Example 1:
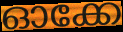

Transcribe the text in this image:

ഓക്കേ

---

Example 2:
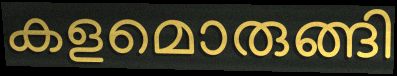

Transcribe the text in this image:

കളമൊരുങ്ങി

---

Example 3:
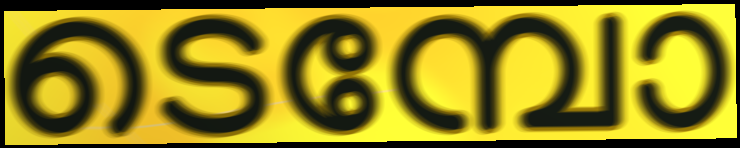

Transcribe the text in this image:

ടെമ്പോ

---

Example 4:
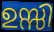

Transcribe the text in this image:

ഉസ്സി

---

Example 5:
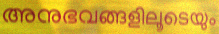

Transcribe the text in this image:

അനുഭവങ്ങളിലൂടെയും